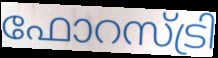
ഫോറസ്ട്രി